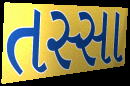
તસ્સા